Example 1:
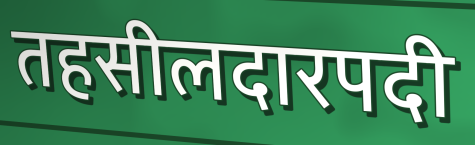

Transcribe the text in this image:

तहसीलदारपदी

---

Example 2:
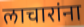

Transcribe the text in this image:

लाचारांना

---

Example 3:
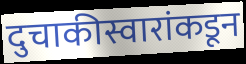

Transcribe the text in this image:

दुचाकीस्वारांकडून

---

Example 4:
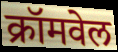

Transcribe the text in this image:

क्रॉमवेल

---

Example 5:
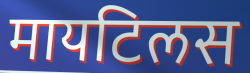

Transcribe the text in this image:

मायटिलस